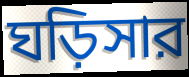
ঘড়িসার